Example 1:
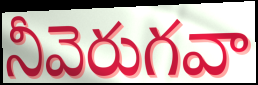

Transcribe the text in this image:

నీవెరుగవా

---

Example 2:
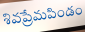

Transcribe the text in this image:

శివప్రేమపిండం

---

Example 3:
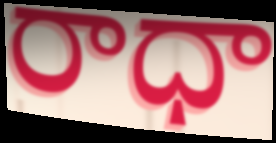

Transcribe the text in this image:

రాధా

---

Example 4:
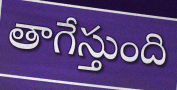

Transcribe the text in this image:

తాగేస్తుంది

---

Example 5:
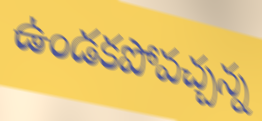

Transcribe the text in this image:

ఉండకపోవచ్చన్న